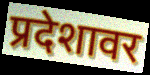
प्रदेशावर